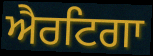
ਐਰਟਿਗਾ